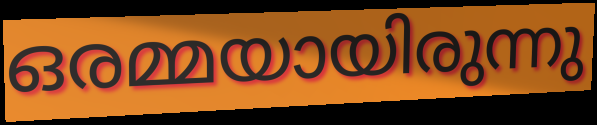
ഒരമ്മയായിരുന്നു